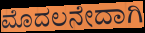
ಮೊದಲನೇದಾಗಿ